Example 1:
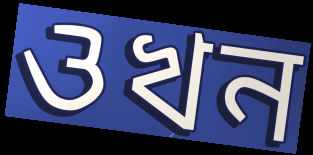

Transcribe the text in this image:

ওখন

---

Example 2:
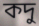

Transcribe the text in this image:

কদু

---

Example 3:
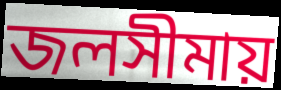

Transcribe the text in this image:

জলসীমায়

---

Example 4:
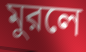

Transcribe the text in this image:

মুরলে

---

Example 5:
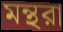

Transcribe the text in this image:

মন্থরা